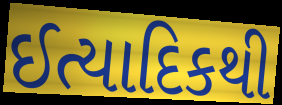
ઈત્યાદિકથી